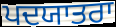
ਪਦਯਾਤਰਾ